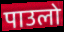
पाउलो